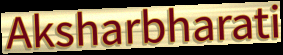
Aksharbharati